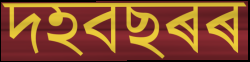
দহবছৰৰ